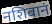
नशिबानं